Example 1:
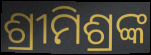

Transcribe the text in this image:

ଶ୍ରୀମିଶ୍ରଙ୍କ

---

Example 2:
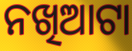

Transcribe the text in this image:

ନଖିଆଟା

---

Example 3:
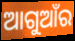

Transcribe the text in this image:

ଆଗୁଆଁର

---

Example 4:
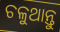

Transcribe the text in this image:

ଚଳୁଥାନ୍ତୁ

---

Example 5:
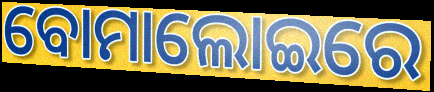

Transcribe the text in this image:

ବୋମାଲୋଇରେ